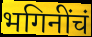
भगिनींचं